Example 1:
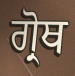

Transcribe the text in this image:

ਗ੍ਰੋਥ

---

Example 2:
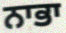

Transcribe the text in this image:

ਨਾਭਾ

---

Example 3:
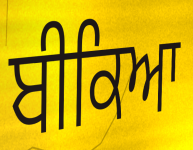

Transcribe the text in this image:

ਬੀਕਿਆ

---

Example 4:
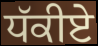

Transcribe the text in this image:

ਧੱਕੀਏ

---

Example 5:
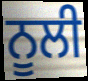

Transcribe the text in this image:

ਨੂਲੀ